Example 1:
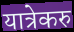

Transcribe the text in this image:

यात्रेकरु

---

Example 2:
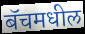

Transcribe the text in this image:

बॅचमधील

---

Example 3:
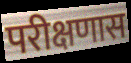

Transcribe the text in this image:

परीक्षणास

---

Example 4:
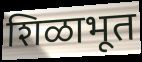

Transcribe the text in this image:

शिळाभूत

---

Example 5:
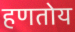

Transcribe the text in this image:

हणतोय